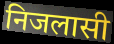
निजलासी